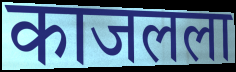
काजलला